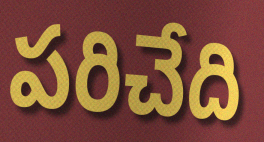
పరిచేది